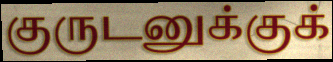
குருடனுக்குக்